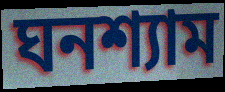
ঘনশ্যাম